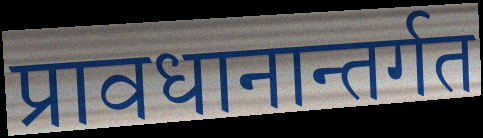
प्रावधानान्तर्गत